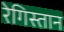
रेगिस्‍तान